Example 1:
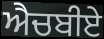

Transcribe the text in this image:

ਐਚਬੀਏ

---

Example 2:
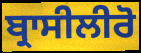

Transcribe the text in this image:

ਬ੍ਰਾਸੀਲੀਰੋ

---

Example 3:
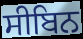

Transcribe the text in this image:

ਸੀਬਿਨ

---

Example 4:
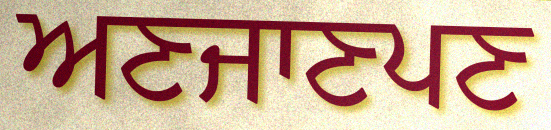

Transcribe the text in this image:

ਅਣਜਾਣਪਣ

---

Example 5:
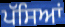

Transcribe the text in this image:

ਪੱਸਿਆਂ